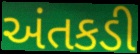
અંતકડી